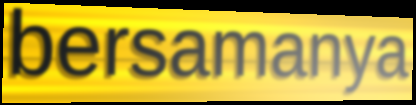
bersamanya